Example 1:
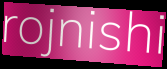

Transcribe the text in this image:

rojnishi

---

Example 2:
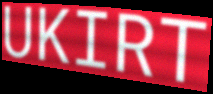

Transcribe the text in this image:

UKIRT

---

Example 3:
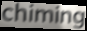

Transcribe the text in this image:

chiming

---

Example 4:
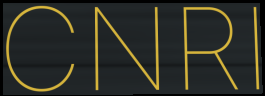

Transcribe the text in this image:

CNRI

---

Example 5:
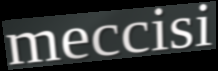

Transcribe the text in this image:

meccisi